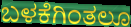
ಬಳಕೆಗಿಂತಲೂ